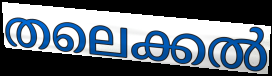
തലെക്കൽ